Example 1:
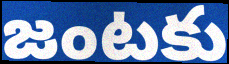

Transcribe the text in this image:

జంటకు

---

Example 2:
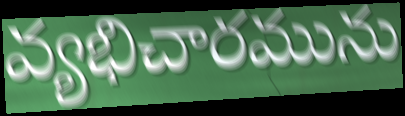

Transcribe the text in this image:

వ్యభిచారమును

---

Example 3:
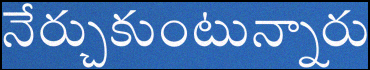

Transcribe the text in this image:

నేర్చుకుంటున్నారు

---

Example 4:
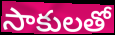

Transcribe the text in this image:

సాకులతో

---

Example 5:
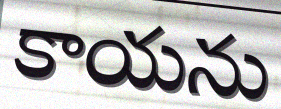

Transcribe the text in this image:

కాయను